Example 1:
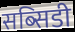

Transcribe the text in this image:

सब्सिडी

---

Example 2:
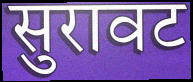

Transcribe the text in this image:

सुरावट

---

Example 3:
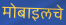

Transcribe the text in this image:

मोबाइलचे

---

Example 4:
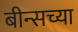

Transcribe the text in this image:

बीन्सच्या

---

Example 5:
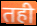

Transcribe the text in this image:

तही